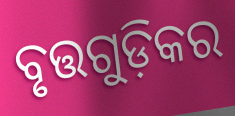
ବୃତ୍ତଗୁଡ଼ିକର